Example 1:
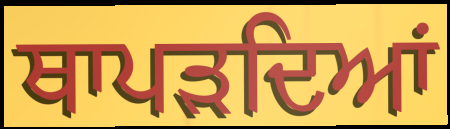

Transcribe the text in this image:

ਥਾਪੜਦਿਆਂ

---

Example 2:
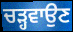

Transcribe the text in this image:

ਚੜ੍ਹਵਾਉਣ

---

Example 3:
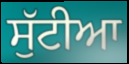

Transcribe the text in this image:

ਸੁੱਟੀਆ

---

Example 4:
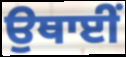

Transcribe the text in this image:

ਉਥਾਈਂ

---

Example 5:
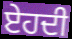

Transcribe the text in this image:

ਏਹਦੀ